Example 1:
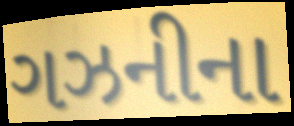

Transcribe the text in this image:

ગઝનીના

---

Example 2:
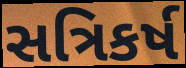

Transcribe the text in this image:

સત્રિકર્ષ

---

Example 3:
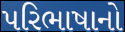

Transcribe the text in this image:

પરિભાષાનો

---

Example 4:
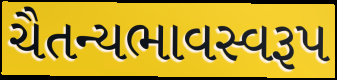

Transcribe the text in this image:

ચૈતન્યભાવસ્વરૂપ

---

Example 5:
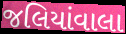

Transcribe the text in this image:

જલિયાંવાલા